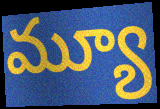
మ్యూ